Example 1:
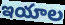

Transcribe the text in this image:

ఇయాల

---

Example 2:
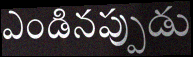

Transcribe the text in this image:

ఎండినప్పుడు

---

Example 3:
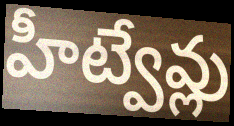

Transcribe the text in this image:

హీట్వేవ్లు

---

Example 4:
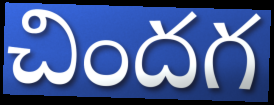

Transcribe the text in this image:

చిందగ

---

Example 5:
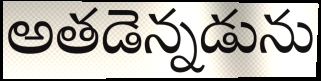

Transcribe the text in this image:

అతడెన్నడును